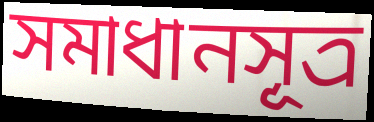
সমাধানসূত্র